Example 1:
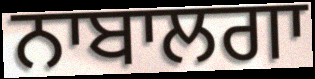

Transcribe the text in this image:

ਨਾਬਾਲਗਾ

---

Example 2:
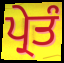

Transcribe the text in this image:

ਪ੍ਰੇਤੰ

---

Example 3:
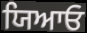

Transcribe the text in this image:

ਯਿਆਓ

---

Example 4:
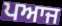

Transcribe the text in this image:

ਪਆਜ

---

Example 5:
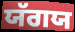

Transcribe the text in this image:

ਯੱਗਯ